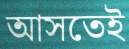
আসতেই